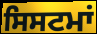
ਸਿਸਟਮਾਂ